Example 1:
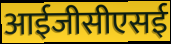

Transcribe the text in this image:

आईजीसीएसई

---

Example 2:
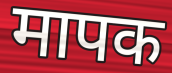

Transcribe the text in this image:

मापक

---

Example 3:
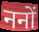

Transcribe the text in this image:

ननों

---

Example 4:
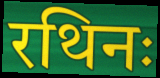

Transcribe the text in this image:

रथिनः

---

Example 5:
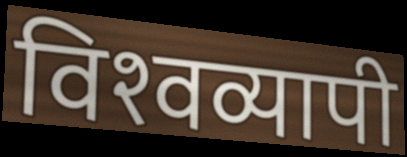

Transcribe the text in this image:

विश्वव्यापी